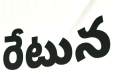
రేటున